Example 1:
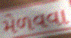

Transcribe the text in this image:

મેળવવા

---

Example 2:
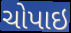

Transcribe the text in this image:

ચોપાઇ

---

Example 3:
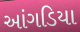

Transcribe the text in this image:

આંગડિયા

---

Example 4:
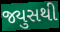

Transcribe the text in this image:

જ્યુસથી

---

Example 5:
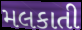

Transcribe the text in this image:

મલકાતી